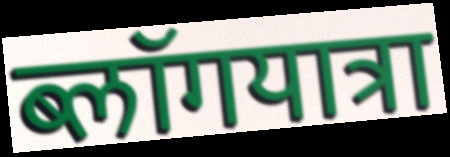
ब्लॉगयात्रा